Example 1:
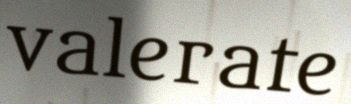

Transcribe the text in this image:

valerate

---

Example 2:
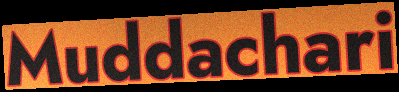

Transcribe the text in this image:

Muddachari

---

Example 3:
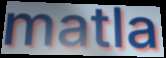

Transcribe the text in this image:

matla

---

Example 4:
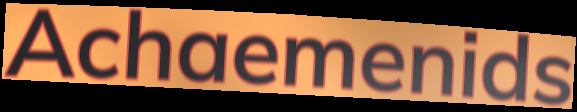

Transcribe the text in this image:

Achaemenids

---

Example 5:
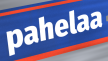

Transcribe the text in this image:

pahelaa